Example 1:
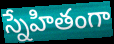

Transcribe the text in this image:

స్నేహితంగా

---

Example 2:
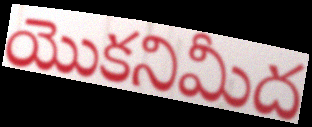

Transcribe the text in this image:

యొకనిమీద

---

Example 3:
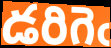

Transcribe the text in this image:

డరిగెఁ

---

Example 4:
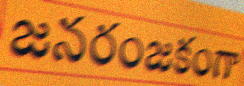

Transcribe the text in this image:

జనరంజకంగా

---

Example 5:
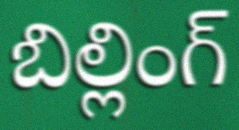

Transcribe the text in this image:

బిల్లింగ్